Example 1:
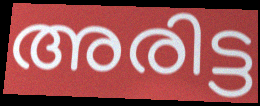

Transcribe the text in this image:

അരിട്ട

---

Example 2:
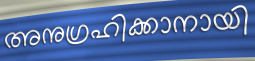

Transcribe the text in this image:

അനുഗ്രഹിക്കാനായി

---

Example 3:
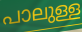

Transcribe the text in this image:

പാലുള്ള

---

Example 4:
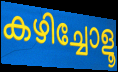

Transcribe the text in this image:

കഴിച്ചോളൂ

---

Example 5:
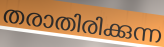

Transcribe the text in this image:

തരാതിരിക്കുന്ന